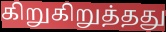
கிறுகிறுத்தது